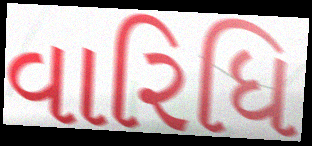
વારિધિ